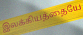
இலக்கியத்தையே